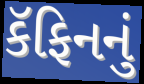
કૅફિનનું